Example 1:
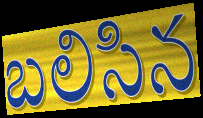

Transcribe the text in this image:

బలిసిన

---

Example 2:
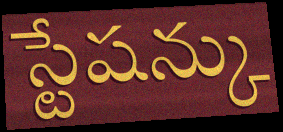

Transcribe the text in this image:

స్టేషన్కు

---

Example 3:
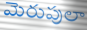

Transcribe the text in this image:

మెరుపులా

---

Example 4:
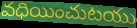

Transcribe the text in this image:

వధియించుటయు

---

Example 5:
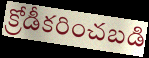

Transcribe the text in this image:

క్రోడీకరించబడి